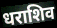
धराशिव